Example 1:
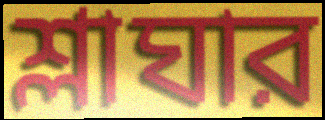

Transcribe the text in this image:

শ্লাঘার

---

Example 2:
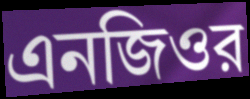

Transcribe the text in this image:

এনজিওর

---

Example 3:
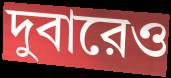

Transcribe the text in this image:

দুবারেও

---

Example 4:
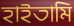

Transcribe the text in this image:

হাইতামি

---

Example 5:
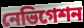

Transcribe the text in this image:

নেভিগেশন